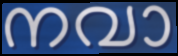
നവാ